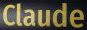
Claude